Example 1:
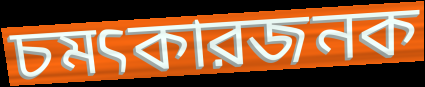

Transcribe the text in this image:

চমৎকারজনক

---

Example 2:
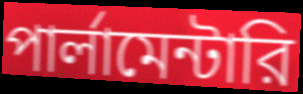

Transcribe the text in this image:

পার্লামেন্টারি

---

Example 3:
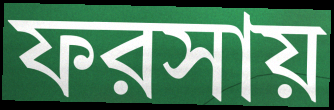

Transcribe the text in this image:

ফরসায়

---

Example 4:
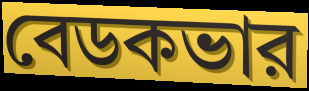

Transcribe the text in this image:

বেডকভার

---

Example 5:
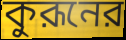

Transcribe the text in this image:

কুরূনের